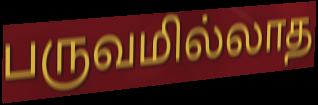
பருவமில்லாத